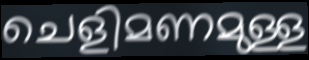
ചെളിമണമുള്ള